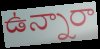
ఉన్నారా